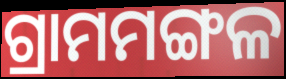
ଗ୍ରାମମଙ୍ଗଳ